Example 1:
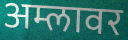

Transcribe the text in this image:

अम्लावर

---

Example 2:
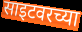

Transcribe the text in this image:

साइटवरच्या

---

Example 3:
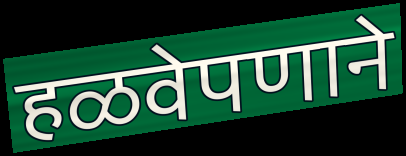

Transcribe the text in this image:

हळवेपणाने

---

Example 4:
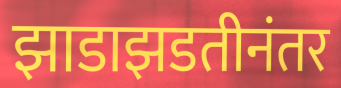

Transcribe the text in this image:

झाडाझडतीनंतर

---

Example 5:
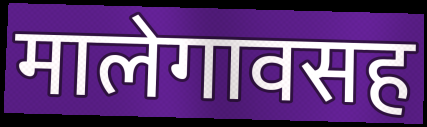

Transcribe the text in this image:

मालेगावसह